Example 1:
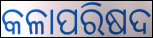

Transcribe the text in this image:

କଳାପରିଷଦ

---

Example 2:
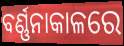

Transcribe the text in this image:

ବର୍ଣ୍ଣନାକାଳରେ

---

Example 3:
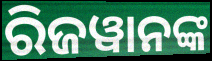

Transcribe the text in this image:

ରିଜୱାନଙ୍କ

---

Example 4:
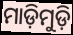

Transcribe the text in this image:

ମାଡ଼ିମୁଡ଼ି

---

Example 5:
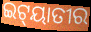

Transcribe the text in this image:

ଇଟ୍‍ୟାତୀର